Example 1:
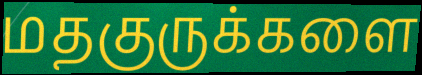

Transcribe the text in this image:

மதகுருக்களை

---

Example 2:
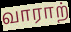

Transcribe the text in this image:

வாராற்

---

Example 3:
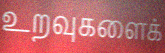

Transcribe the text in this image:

உறவுகளைக்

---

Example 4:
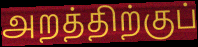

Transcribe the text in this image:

அறத்திற்குப்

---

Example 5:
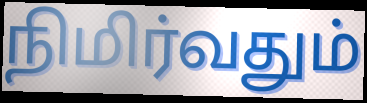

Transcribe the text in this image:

நிமிர்வதும்